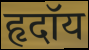
हृदॉय